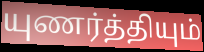
யுணர்த்தியும்